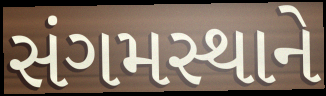
સંગમસ્થાને